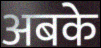
अबके